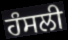
ਹੰਸਲੀ